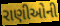
રાણીઓની